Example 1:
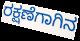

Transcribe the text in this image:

ರಕ್ಷಣೆಗಾಗಿನ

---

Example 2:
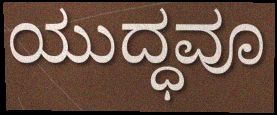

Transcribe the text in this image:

ಯುದ್ಧವೂ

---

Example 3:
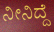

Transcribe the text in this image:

ನೀನಿದ್ದೆ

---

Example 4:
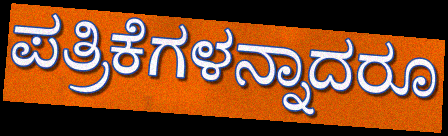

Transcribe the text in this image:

ಪತ್ರಿಕೆಗಳನ್ನಾದರೂ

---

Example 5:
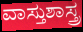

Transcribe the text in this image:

ವಾಸ್ತುಶಾಸ್ತ್ರ